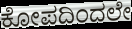
ಕೋಪದಿಂದಲೇ